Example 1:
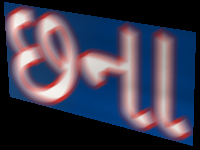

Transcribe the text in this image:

છના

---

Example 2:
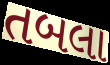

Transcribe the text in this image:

તબલા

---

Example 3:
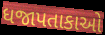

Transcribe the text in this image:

ધજાપતાકાઓ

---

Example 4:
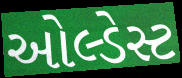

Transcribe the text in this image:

ઓલ્ડેસ્ટ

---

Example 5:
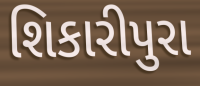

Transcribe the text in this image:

શિકારીપુરા